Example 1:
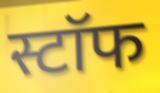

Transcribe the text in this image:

स्‍टॉफ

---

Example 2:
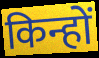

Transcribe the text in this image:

किन्हों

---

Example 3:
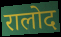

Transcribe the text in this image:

रालोद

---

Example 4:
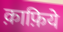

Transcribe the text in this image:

क़ाफ़िये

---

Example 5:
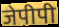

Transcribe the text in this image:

जेपीपी